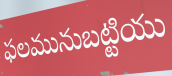
ఫలమునుబట్టియు